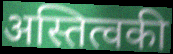
अस्तित्वकी